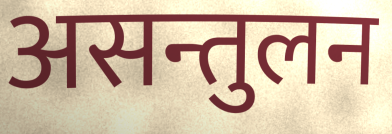
असन्तुलन